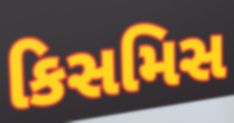
કિસમિસ